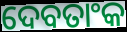
ଦେବତାଂକ